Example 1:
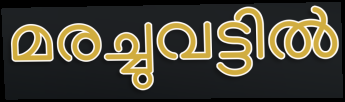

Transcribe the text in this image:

മരച്ചുവട്ടിൽ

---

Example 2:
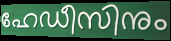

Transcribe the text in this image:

ഹേഡീസിനും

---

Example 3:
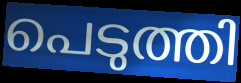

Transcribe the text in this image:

പെടുത്തി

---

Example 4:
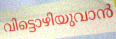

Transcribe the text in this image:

വിട്ടൊഴിയുവാൻ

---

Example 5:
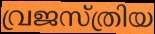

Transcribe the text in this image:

വ്രജസ്ത്രിയ